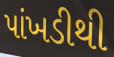
પાંખડીથી